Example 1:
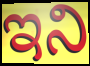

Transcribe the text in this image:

ಇನಿ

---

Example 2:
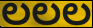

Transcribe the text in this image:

ಲಲಲ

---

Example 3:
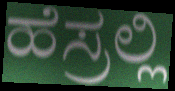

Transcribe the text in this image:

ಹೆಸ್ರಲ್ಲಿ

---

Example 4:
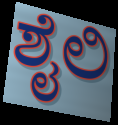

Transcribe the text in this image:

ಶೈಲಿ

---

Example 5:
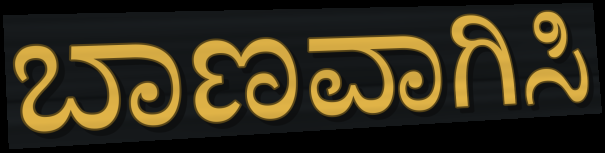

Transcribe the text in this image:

ಬಾಣವಾಗಿಸಿ